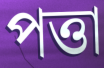
পত্তা